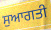
ਸੁਆਗਤੀ